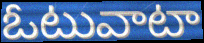
ఓటువాటా